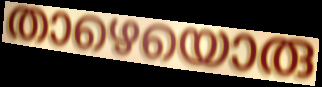
താഴെയൊരു